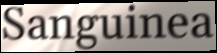
Sanguinea